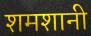
शमशानी